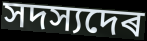
সদস্যদেৰ